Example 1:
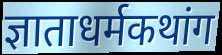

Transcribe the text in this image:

ज्ञाताधर्मकथांग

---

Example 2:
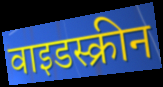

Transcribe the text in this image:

वाइडस्क्रीन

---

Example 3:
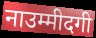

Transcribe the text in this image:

नाउम्मीदगी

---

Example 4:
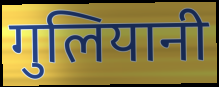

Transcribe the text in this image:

गुलियानी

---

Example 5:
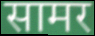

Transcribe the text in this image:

सामर